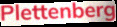
Plettenberg